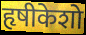
हृषीकेशो